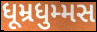
ધૂમ્રધુમ્મસ